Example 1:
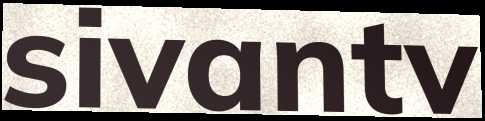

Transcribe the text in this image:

sivantv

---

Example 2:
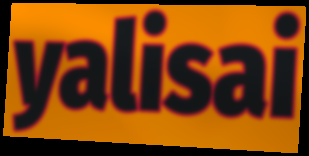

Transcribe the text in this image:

yalisai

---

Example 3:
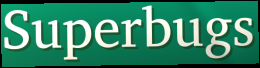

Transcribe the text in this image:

Superbugs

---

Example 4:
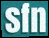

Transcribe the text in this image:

sfn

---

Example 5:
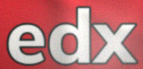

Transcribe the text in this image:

edx